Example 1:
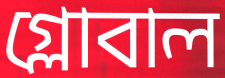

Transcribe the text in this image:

গ্লোবাল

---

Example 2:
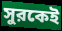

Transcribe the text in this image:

সুরকেই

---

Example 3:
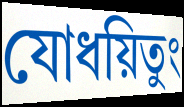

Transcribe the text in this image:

যোধয়িতুং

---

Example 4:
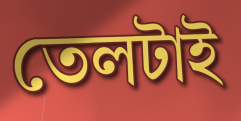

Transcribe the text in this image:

তেলটাই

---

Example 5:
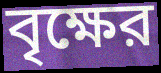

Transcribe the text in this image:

বৃক্ষের